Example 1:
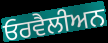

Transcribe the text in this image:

ਓਰਵੈਲੀਅਨ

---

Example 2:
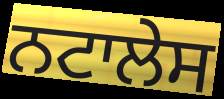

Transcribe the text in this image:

ਨਟਾਲੇਸ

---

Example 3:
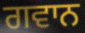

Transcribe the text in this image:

ਗਵਾਨ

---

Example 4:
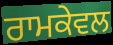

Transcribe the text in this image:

ਰਾਮਕੇਵਲ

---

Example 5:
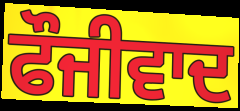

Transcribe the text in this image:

ਫੌਜੀਵਾਦ